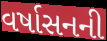
વર્ષાસનની